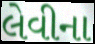
લેવીના